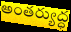
అంతర్యుద్ధ